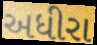
અધીરા